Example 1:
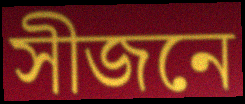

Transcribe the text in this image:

সীজনে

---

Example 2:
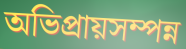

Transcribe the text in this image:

অভিপ্রায়সম্পন্ন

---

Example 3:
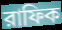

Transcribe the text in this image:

রাফিক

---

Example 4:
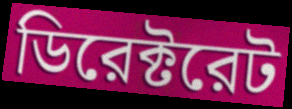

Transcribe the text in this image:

ডিরেক্টরেট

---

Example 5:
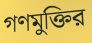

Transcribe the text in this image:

গণমুক্তির